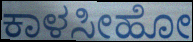
ಕಾಳಸೀಹೋ